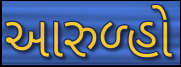
આરુળ્હો